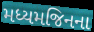
મધ્યમજિનના